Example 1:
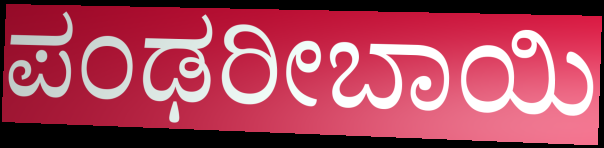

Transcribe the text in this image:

ಪಂಢರೀಬಾಯಿ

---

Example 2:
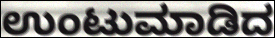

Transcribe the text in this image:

ಉಂಟುಮಾಡಿದ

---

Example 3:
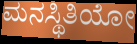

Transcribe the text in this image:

ಮನಸ್ಥಿತಿಯೋ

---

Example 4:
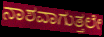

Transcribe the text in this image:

ನಾಶವಾಗುತ್ತಲೇ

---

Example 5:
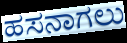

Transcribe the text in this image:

ಹಸನಾಗಲು